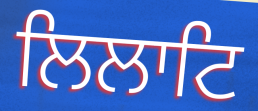
ਲਿਲਾਟਿ